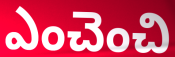
ఎంచెంచి